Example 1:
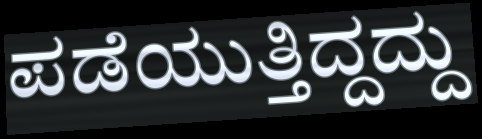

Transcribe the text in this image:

ಪಡೆಯುತ್ತಿದ್ದದ್ದು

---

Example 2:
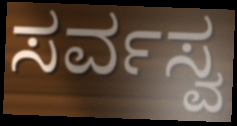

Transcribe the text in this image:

ಸರ್ವಸ್ವ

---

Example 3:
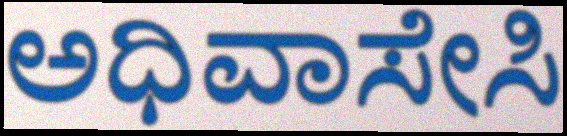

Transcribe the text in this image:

ಅಧಿವಾಸೇಸಿ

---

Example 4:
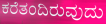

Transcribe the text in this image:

ಕರೆತಂದಿರುವುದು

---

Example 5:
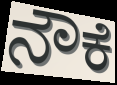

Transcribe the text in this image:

ನೌಕೆ